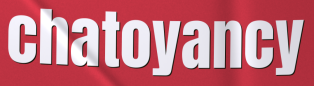
chatoyancy